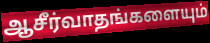
ஆசீர்வாதங்களையும்